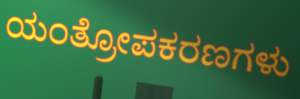
ಯಂತ್ರೋಪಕರಣಗಳು